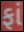
ફાં